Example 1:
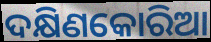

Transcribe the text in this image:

ଦକ୍ଷିଣକୋରିଆ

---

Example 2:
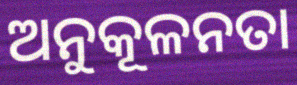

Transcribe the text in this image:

ଅନୁକୂଳନତା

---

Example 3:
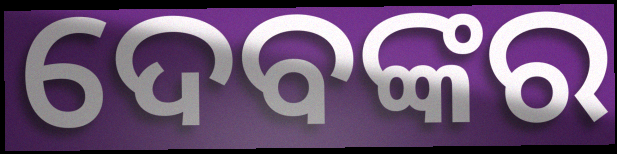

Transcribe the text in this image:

ଦେବଙ୍କର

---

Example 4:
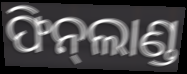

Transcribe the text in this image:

ଫିନ୍‌ଲାଣ୍ଡ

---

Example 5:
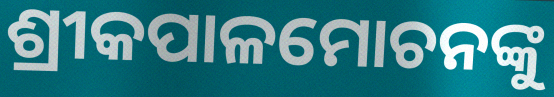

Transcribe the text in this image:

ଶ୍ରୀକପାଳମୋଚନଙ୍କୁ